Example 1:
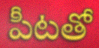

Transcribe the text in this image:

పీటతో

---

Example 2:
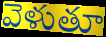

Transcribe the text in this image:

వెళుతూ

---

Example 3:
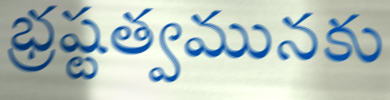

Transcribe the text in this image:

భ్రష్టత్వమునకు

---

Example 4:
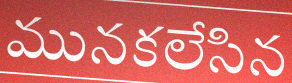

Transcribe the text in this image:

మునకలేసిన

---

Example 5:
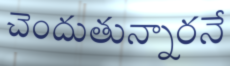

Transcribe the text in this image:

చెందుతున్నారనే